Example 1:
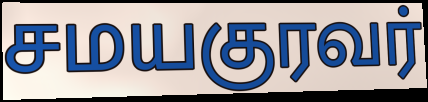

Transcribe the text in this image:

சமயகுரவர்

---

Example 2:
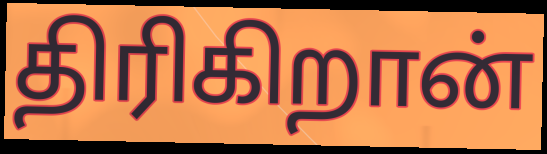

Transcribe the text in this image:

திரிகிறான்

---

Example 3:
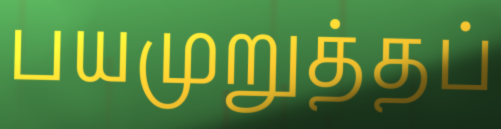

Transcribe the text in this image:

பயமுறுத்தப்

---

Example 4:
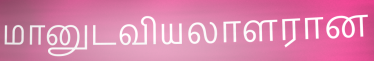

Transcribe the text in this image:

மானுடவியலாளரான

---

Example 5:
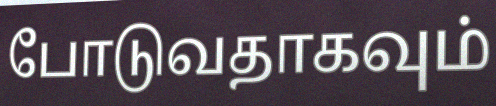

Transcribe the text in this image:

போடுவதாகவும்